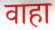
वाहा